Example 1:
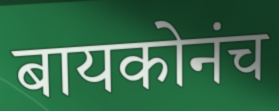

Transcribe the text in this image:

बायकोनंच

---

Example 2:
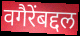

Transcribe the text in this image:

वगैरेंबद्दल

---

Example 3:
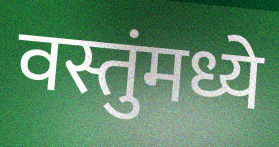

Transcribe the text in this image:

वस्तुंमध्ये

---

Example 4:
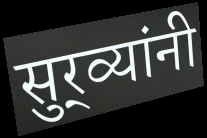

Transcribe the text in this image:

सुर्व्यांनी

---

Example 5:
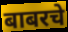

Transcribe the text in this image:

बाबरचे